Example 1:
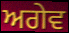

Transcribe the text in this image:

ਅਗੇਵ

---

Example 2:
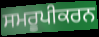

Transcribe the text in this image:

ਸਮਰੂਪੀਕਰਨ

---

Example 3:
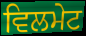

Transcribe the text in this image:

ਵਿਲਮੇਟ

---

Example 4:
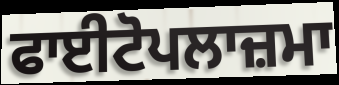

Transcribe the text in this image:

ਫਾਈਟੋਪਲਾਜ਼ਮਾ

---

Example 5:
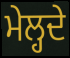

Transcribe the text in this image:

ਮੇਲ੍ਹਦੇ